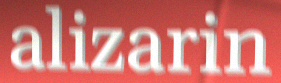
alizarin